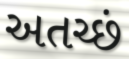
અતચ્છં